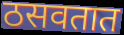
ठसवतात